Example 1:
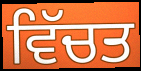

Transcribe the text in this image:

ਵਿੱਚਤ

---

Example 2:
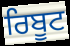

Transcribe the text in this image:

ਰਿਬੂਟ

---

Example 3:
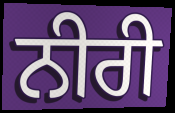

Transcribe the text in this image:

ਨੀਰੀ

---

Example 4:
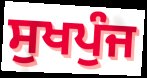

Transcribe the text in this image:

ਸੁਖਪੁੰਜ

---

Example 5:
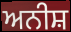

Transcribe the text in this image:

ਅਨੀਸ਼